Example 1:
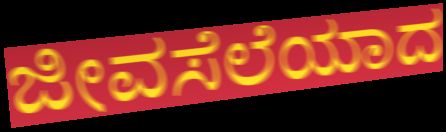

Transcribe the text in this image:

ಜೀವಸೆಲೆಯಾದ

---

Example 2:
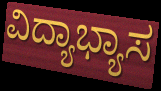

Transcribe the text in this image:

ವಿದ್ಯಾಭ್ಯಾಸ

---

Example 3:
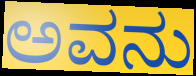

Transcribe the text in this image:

ಅವನು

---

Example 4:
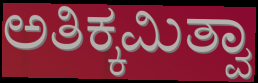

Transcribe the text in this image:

ಅತಿಕ್ಕಮಿತ್ವಾ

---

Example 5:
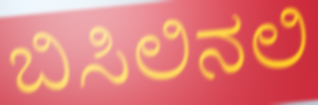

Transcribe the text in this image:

ಬಿಸಿಲಿನಲಿ